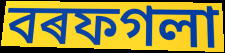
বৰফগলা